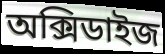
অক্সিডাইজ